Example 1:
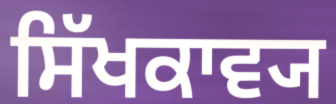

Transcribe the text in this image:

ਸਿੱਖਕਾਵ੍ਯ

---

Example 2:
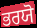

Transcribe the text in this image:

ਭਰਯੋ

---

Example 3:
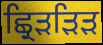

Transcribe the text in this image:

ਛ੍ਰਿੜੜਿੜ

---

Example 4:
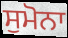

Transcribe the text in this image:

ਸੁਮੋਨਾ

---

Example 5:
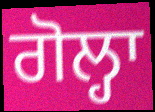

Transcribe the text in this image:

ਗੋਲ੍ਹਾ